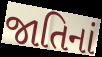
જાતિનાં